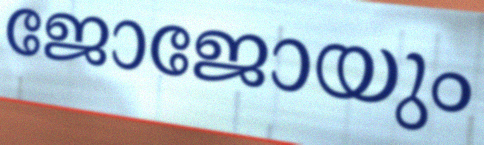
ജോജോയും